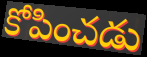
కోపించడు